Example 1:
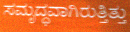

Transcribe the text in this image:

ಸಮೃದ್ಧವಾಗಿರುತ್ತಿತ್ತು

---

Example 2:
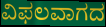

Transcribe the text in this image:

ವಿಫಲವಾಗದ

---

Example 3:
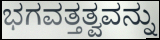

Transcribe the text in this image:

ಭಗವತ್ತತ್ವವನ್ನು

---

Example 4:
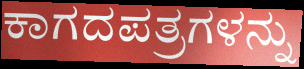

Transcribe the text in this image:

ಕಾಗದಪತ್ರಗಳನ್ನು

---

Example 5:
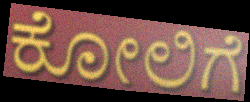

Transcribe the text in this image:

ಕೋಲಿಗೆ